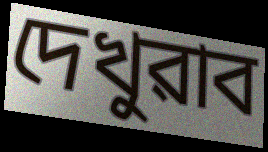
দেখুৱাব